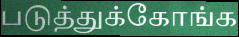
படுத்துக்கோங்க